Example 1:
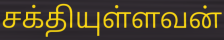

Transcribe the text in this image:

சக்தியுள்ளவன்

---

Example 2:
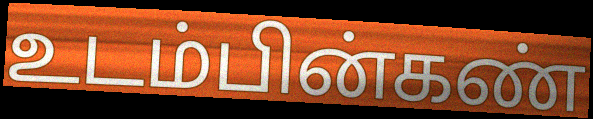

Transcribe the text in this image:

உடம்பின்கண்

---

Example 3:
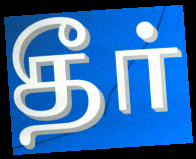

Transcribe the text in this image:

தீர்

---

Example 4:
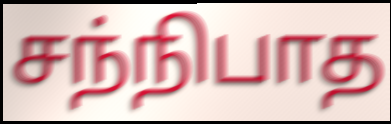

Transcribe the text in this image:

சந்நிபாத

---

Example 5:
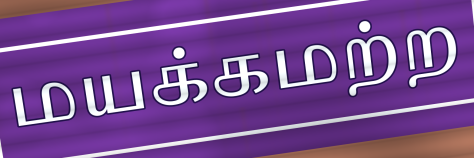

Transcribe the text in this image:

மயக்கமற்ற